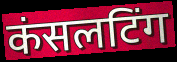
कंसलटिंग